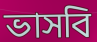
ভাসবি